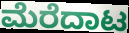
ಮೆರೆದಾಟ